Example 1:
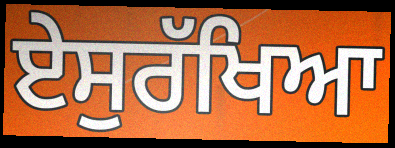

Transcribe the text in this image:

ਏਸੁਰੱਖਿਆ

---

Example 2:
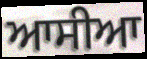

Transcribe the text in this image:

ਆਸੀਆ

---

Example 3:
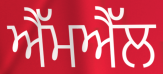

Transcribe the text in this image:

ਐੱਮਐੱਲ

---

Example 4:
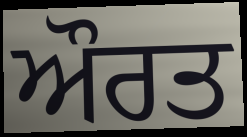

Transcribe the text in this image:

ਔਰਤ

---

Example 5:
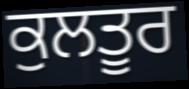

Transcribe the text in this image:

ਕੁਲਤੂਰ